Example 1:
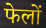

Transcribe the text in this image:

फेलों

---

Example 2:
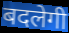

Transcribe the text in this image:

बदलेगी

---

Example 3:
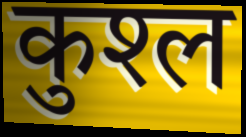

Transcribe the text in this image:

कुश्ल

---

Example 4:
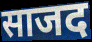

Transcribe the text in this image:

साजद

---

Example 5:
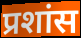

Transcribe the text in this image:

प्रशांस